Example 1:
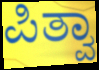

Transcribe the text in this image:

ಪಿತ್ವಾ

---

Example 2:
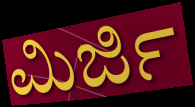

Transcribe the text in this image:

ಮಿರ್ಜಿ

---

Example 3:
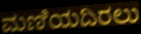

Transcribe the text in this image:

ಮಣಿಯದಿರಲು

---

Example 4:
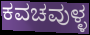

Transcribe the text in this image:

ಕವಚವುಳ್ಳ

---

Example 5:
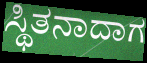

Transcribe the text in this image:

ಸ್ಥಿತನಾದಾಗ